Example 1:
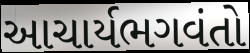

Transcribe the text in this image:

આચાર્યભગવંતો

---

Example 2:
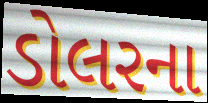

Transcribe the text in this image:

ડોલરના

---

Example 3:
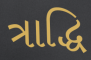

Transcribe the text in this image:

ત્રાદ્ધિ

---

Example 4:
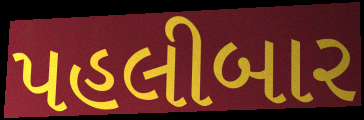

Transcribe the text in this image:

પહલીબાર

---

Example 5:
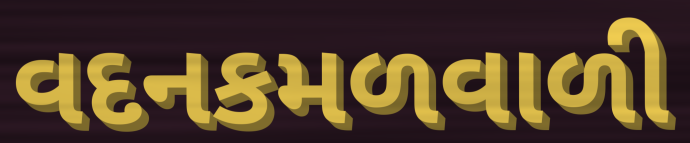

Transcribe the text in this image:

વદનકમળવાળી